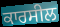
ਕਾਰਸੀਲ